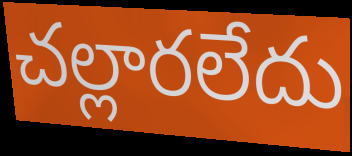
చల్లారలేదు